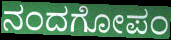
ನಂದಗೋಪಂ